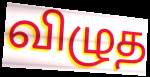
விழுத